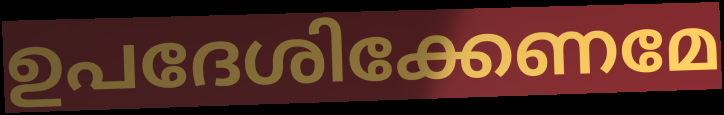
ഉപദേശിക്കേണമേ